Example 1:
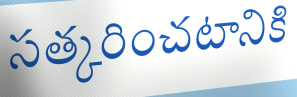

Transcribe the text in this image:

సత్కరించటానికి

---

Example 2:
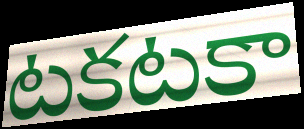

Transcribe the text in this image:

టకటకా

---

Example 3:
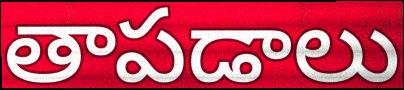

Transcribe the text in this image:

తాపడాలు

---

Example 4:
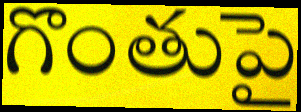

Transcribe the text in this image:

గొంతుపై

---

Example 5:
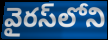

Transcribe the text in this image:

వైరస్‌లోని